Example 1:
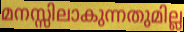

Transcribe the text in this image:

മനസ്സിലാകുന്നതുമില്ല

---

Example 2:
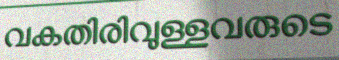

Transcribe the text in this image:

വകതിരിവുള്ളവരുടെ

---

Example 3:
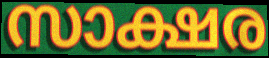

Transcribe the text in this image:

സാക്ഷര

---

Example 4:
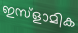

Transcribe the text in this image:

ഇസ്ളാമിക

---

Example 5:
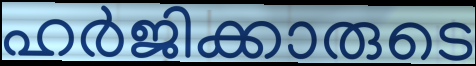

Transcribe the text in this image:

ഹർജിക്കാരുടെ